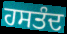
ਹਸਤੰਦ